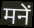
मनें